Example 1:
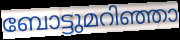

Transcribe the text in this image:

ബോട്ടുമറിഞ്ഞാ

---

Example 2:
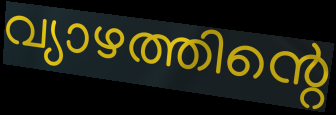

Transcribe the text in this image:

വ്യാഴത്തിന്റെ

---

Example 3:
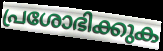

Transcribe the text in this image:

പ്രശോഭിക്കുക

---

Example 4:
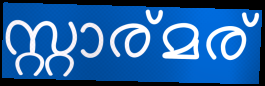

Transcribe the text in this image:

സ്റ്റാര്മര്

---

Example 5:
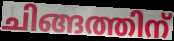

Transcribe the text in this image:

ചിങ്ങത്തിന്